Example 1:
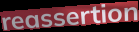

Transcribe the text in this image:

reassertion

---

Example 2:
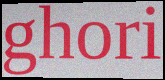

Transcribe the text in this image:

ghori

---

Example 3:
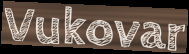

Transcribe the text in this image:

Vukovar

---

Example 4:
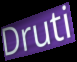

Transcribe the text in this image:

Druti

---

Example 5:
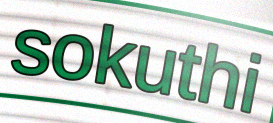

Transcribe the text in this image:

sokuthi